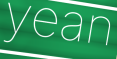
yean